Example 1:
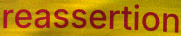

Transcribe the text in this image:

reassertion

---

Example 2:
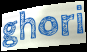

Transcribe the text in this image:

ghori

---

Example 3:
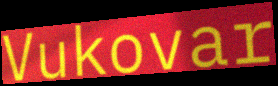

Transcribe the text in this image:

Vukovar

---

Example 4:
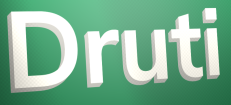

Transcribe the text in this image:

Druti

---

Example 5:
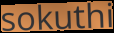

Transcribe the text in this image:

sokuthi